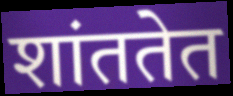
शांततेत